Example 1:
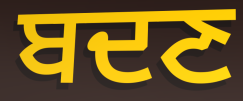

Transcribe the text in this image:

ਬਦਣ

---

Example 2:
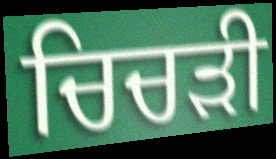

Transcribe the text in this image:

ਚਿਚੜੀ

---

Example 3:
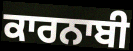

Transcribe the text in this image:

ਕਾਰਨਾਬੀ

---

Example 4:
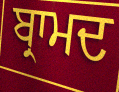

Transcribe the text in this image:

ਬ੍ਰਾਮਦ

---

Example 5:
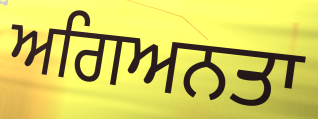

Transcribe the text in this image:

ਅਗਿਅਨਤਾ